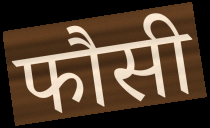
फौसी